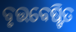
ବୃତ୍ତବେଷ୍ଟିତ